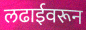
लढाईवरून